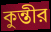
কুন্তীর